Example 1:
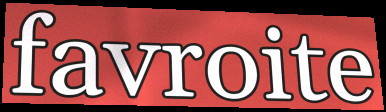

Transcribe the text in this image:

favroite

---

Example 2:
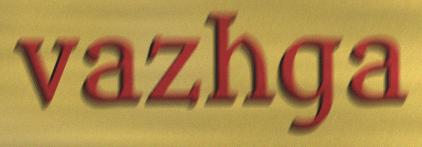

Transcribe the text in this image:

vazhga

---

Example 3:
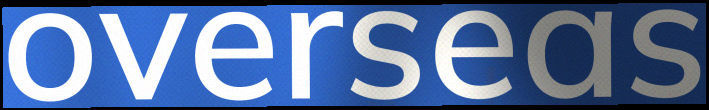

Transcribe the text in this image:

overseas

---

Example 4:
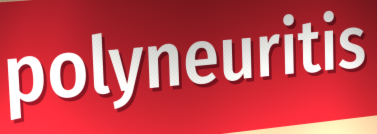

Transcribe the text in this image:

polyneuritis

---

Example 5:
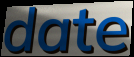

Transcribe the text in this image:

date